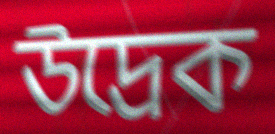
উদ্ৰেক